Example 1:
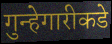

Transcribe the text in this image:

गुन्हेगारीकडे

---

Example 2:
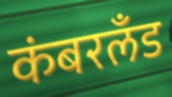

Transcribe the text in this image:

कंबरलँड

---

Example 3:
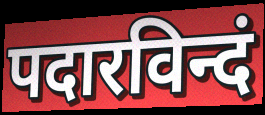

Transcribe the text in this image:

पदारविन्दं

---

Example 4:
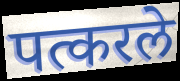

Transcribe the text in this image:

पत्करले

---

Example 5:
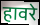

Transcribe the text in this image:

हावरे